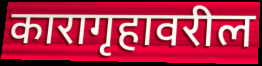
कारागृहावरील